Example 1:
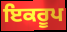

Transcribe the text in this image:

ਇਕਰੂਪ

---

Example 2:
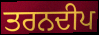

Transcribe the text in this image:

ਤਰਨਦੀਪ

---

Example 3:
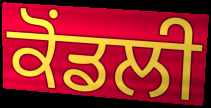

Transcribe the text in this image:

ਕੋਂਡਲੀ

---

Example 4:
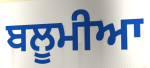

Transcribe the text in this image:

ਬਲੂਮੀਆ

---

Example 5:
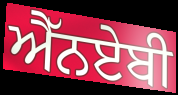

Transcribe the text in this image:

ਐੱਨਏਬੀ